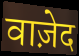
वाज़ेद